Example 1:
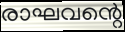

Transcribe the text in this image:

രാഘവന്റെ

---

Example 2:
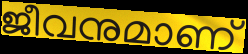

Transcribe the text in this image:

ജീവനുമാണ്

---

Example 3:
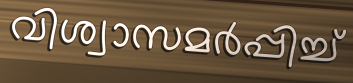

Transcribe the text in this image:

വിശ്വാസമർപ്പിച്ച്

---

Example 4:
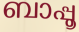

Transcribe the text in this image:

ബാപ്പൂ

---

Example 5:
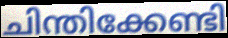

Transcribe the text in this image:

ചിന്തിക്കേണ്ടി